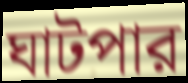
ঘাটপার